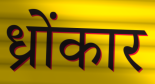
ध्रोंकार